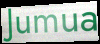
Jumua